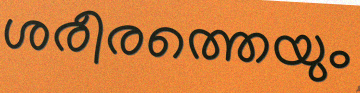
ശരീരത്തെയും